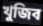
খুজিব